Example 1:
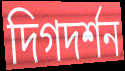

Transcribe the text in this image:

দিগদর্শন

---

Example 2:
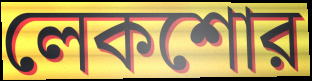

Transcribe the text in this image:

লেকশোর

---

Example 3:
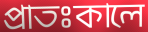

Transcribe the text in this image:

প্রাতঃকালে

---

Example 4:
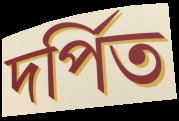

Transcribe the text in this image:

দর্পিত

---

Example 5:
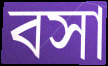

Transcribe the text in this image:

বসা